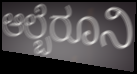
ಆಲ್ಬೆರೂನಿ